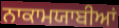
ਨਾਕਾਮਯਾਬੀਆਂ